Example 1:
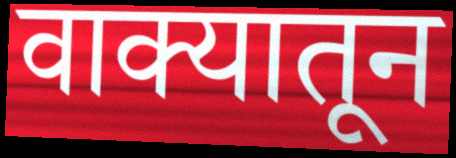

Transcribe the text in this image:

वाक्यातून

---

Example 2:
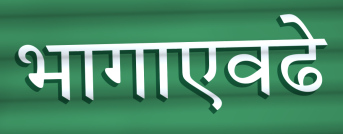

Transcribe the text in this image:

भागाएवढे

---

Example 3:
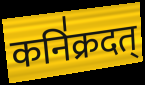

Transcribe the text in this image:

कनि॑क्रदत्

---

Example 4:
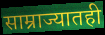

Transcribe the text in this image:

साम्राज्यातही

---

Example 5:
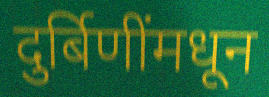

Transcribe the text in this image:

दुर्बिणींमधून